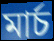
মার্চ